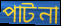
পাটনা